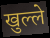
खुल्ले